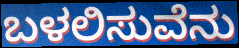
ಬಳಲಿಸುವೆನು